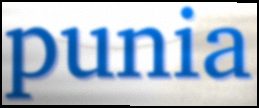
punia